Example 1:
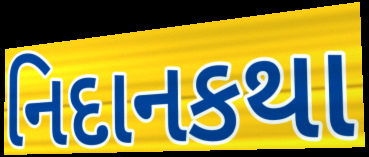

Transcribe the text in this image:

નિદાનકથા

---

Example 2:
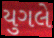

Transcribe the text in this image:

યુગલે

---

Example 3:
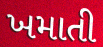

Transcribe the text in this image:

ખમાતી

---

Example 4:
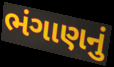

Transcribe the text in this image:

ભંગાણનું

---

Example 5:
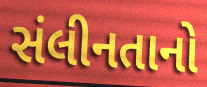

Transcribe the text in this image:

સંલીનતાનો